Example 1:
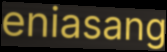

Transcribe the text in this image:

eniasang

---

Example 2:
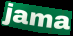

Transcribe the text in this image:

jama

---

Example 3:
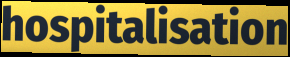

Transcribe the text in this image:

hospitalisation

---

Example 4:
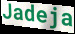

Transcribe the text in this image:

Jadeja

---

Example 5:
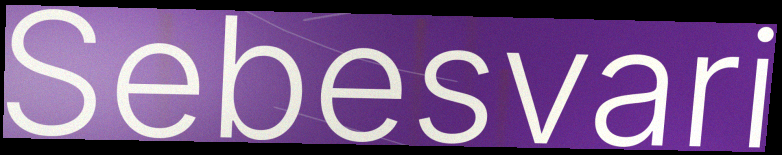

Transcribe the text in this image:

Sebesvari